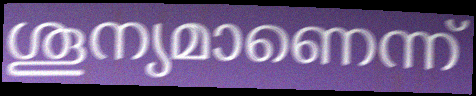
ശൂന്യമാണെന്ന്